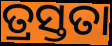
ତ୍ରସ୍ତତା